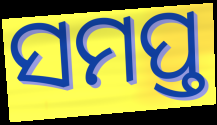
ସମପ୍ତ